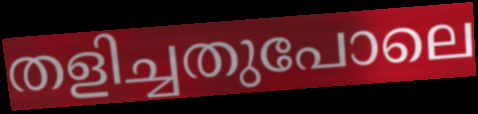
തളിച്ചതുപോലെ